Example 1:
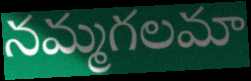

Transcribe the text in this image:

నమ్మగలమా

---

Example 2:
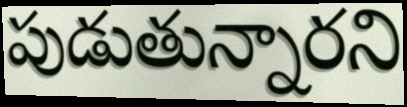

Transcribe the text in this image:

పుడుతున్నారని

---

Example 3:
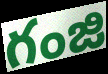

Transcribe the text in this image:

గంజి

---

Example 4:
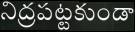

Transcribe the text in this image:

నిద్రపట్టకుండా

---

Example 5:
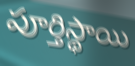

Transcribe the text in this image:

పూర్తిస్థాయి